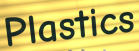
Plastics